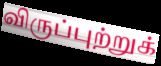
விருப்புற்றுக்